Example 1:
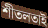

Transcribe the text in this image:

শীতলতাই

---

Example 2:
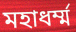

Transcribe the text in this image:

মহাধর্ম্ম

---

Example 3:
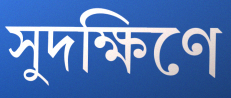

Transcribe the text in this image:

সুদক্ষিণে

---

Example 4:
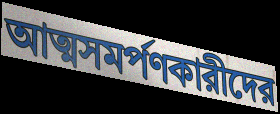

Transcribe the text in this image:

আত্মসমর্পণকারীদের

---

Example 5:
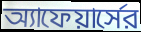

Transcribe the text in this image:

অ্যাফেয়ার্সের